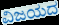
ವಿಜಯದ